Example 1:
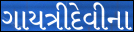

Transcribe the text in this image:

ગાયત્રીદેવીના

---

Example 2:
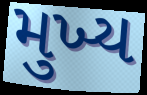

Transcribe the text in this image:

મુખ્ય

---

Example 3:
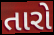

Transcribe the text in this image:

તારો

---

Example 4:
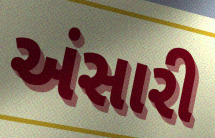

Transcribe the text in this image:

અંસારી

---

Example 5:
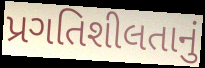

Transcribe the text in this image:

પ્રગતિશીલતાનું